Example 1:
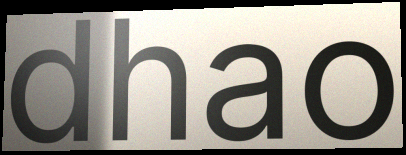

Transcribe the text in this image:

dhao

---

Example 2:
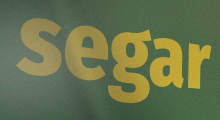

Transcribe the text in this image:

segar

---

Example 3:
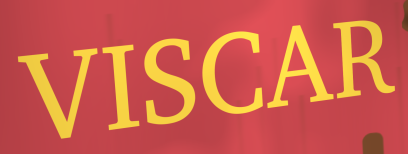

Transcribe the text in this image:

VISCAR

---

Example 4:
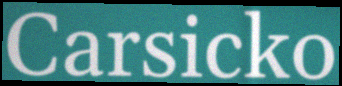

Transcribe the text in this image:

Carsicko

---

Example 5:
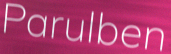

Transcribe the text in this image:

Parulben